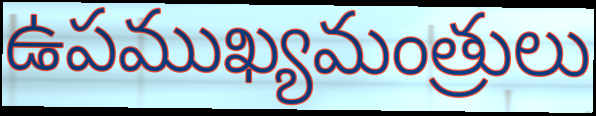
ఉపముఖ్యమంత్రులు